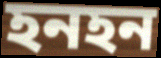
হনহন